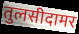
तुलसीदामर